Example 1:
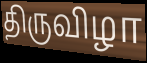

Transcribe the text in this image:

திருவிழா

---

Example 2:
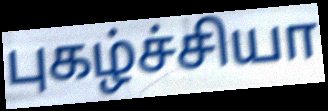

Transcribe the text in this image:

புகழ்ச்சியா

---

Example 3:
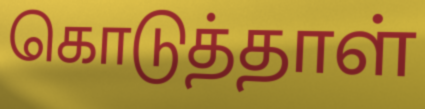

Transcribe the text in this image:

கொடுத்தாள்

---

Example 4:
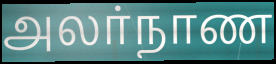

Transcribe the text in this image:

அலர்நாண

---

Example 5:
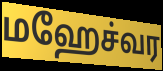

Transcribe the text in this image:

மஹேச்வர